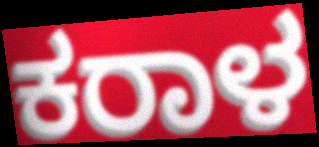
ಕರಾಳ